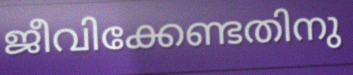
ജീവിക്കേണ്ടതിനു